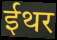
ईथर